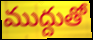
ముద్దుతో